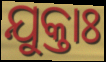
ଯୁକ୍ତାଃ